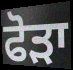
ਫੋੜਾ